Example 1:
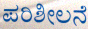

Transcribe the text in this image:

ಪರಿಶೀಲನೆ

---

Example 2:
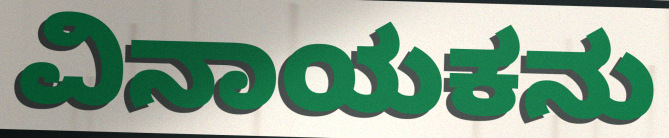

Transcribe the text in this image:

ವಿನಾಯಕನು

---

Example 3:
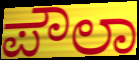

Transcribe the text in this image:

ಪೌಲಾ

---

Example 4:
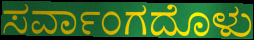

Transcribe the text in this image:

ಸರ್ವಾಂಗದೊಳು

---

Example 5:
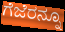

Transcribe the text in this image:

ಗೆಜೆರನ್ನೂ